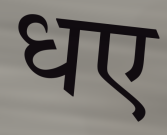
धए